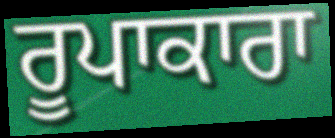
ਰੂਪਾਕਾਰਾ